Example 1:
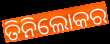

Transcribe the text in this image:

ତିନିଲୋକର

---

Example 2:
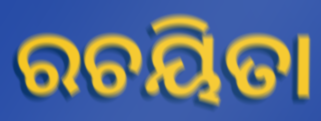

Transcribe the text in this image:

ରଚୟିତା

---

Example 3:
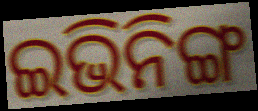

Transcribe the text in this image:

ଇଭିନିଙ୍ଗ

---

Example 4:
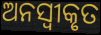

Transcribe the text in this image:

ଅନସ୍ବୀକୃତ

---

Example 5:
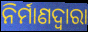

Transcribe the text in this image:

ନିର୍ମାଣଦ୍ୱାରା